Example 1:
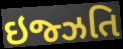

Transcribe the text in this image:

ઇજ્ઝતિ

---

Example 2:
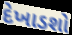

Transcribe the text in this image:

દેખાડશો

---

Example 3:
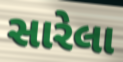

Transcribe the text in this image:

સારેલા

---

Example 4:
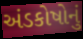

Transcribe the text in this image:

અંડકોષોનું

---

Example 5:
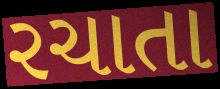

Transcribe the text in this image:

રચાતા